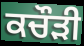
ਕਚੌੜੀ